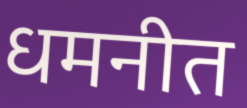
धमनीत